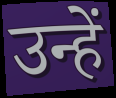
उन्हें